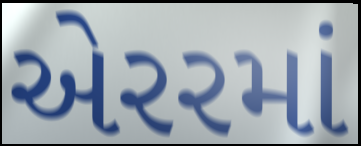
એરરમાં